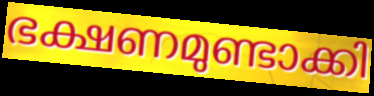
ഭക്ഷണമുണ്ടാക്കി